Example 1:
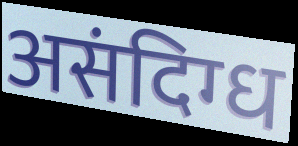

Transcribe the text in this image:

असंदिग्ध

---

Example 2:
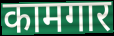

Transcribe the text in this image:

कामगार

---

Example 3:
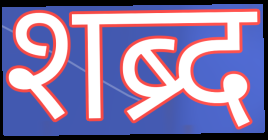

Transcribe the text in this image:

शब्र्द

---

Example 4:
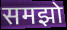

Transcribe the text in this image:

समझो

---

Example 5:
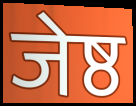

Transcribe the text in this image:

जेष्ठ